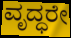
ವೃದ್ಧರೇ